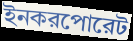
ইনকরপোরেট